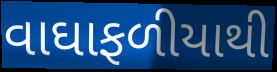
વાઘાફળીયાથી